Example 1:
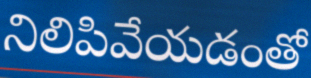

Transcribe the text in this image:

నిలిపివేయడంతో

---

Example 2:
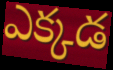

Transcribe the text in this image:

ఎక్కడ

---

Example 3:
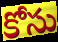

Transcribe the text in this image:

కోసు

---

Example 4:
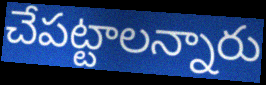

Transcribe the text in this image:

చేపట్టాలన్నారు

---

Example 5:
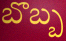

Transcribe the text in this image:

బొబ్బ